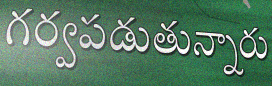
గర్వపడుతున్నారు